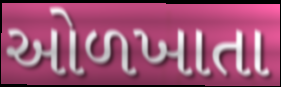
ઓળખાતા